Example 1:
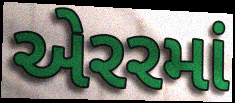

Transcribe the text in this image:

એરરમાં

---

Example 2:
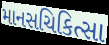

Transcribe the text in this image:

માનસચિકિત્સા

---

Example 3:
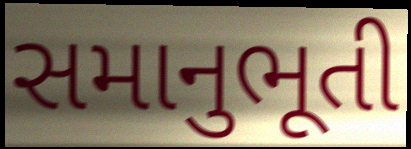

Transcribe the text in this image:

સમાનુભૂતી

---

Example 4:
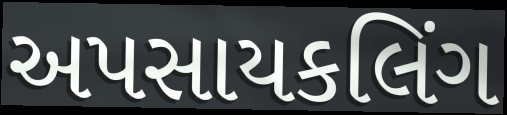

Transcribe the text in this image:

અપસાયકલિંગ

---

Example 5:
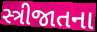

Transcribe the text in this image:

સ્ત્રીજાતના